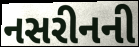
નસરીનની